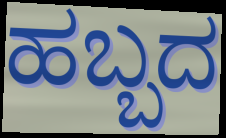
ಹಬ್ಬದ